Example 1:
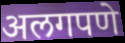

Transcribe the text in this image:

अलगपणे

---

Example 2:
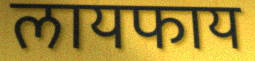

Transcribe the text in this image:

लायफाय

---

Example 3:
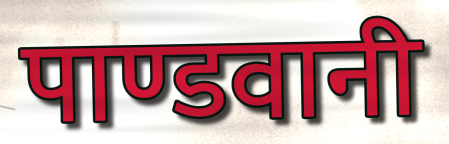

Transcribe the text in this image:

पाण्डवानी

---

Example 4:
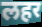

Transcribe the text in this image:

लहर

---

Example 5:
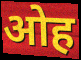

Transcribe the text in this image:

ओह